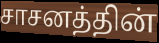
சாசனத்தின்